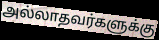
அல்லாதவர்களுக்கு